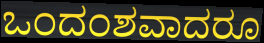
ಒಂದಂಶವಾದರೂ